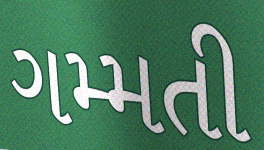
ગમ્મતી